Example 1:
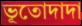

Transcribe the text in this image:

ভূতোদাদা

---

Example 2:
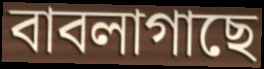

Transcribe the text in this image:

বাবলাগাছে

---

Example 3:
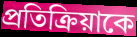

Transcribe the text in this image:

প্রতিক্রিয়াকে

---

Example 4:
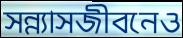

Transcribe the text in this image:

সন্ন্যাসজীবনেও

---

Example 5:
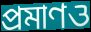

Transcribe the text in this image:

প্রমাণও